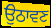
ਉਠਾਵਣ